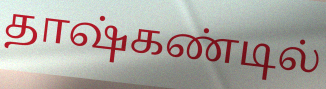
தாஷ்கண்டில்